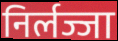
निर्लज्जा